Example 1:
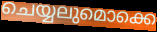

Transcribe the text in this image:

ചെയ്യലുമൊക്കെ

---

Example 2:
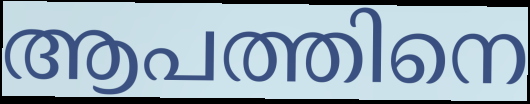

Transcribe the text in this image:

ആപത്തിനെ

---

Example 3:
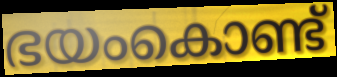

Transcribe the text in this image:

ഭയംകൊണ്ട്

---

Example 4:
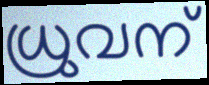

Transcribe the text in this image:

ധ്രുവന്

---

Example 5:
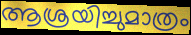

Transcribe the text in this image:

ആശ്രയിച്ചുമാത്രം